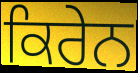
ਕਿਰੇਨ